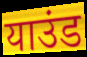
याउंड